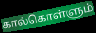
கால்கொள்ளும்